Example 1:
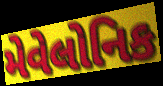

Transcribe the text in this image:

મેવેલોનિક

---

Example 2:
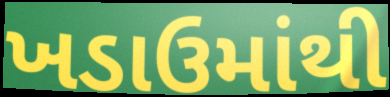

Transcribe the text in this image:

ખડાઉમાંથી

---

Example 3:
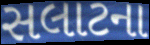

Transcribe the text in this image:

સલાટના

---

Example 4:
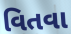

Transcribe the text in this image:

વિતવા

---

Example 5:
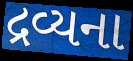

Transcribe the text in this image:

દ્રવ્યના